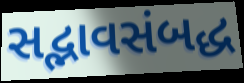
સદ્ભાવસંબદ્ધ